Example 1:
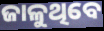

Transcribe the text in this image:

ଜାଳୁଥିବେ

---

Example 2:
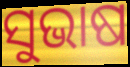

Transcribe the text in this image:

ସୁଭାଷ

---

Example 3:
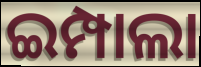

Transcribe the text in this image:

ଇମ୍ପାଲା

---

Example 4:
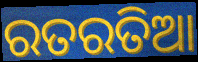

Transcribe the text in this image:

ରତରତିଆ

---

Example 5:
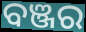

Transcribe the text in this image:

ବଞ୍ଜର